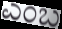
ಎಂಬ